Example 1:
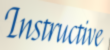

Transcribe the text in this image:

Instructive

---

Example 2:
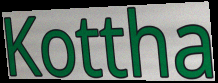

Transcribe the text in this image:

Kottha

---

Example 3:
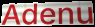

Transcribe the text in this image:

Adenu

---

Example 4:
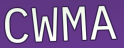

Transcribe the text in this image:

CWMA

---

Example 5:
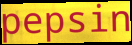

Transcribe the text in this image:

pepsin